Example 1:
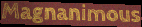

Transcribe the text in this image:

Magnanimous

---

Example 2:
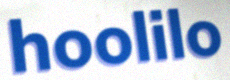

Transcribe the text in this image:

hoolilo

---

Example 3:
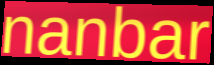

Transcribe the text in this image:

nanbar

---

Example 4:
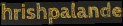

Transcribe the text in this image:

hrishpalande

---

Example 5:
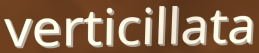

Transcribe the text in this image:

verticillata